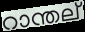
റാന്തല്